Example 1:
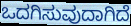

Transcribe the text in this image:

ಒದಗಿಸುವುದಾಗಿದೆ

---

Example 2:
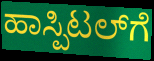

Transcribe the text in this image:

ಹಾಸ್ಪಿಟಲ್‌ಗೆ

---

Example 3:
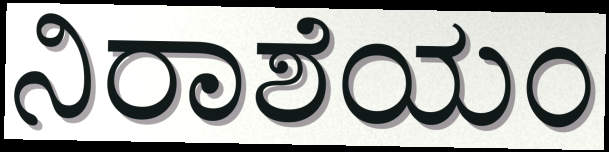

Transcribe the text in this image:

ನಿರಾಶೆಯಂ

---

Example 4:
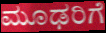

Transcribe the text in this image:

ಮೂಢರಿಗೆ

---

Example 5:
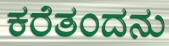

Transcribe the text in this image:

ಕರೆತಂದನು